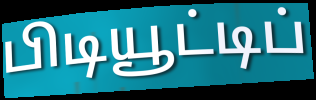
பிடியூட்டிப்